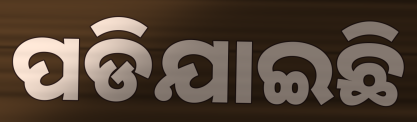
ପଡିଯାଇଛି